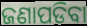
ଜଣାପଡିବା